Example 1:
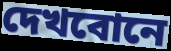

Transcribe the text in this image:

দেখবোনে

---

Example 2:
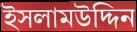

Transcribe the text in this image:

ইসলামউদ্দিন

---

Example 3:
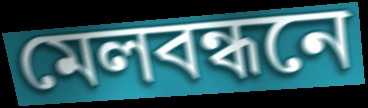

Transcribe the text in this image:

মেলবন্ধনে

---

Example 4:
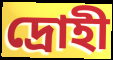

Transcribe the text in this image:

দ্রোহী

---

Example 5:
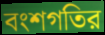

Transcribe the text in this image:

বংশগতির